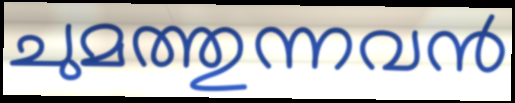
ചുമത്തുന്നവൻ